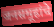
जनसमूहांचे